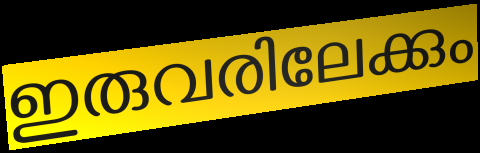
ഇരുവരിലേക്കും